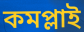
কমপ্লাই